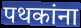
पथकांना